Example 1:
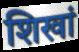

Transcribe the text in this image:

शिखां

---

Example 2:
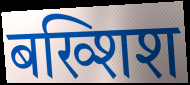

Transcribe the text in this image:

बख्शिश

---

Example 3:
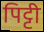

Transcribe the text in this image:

पिट्टी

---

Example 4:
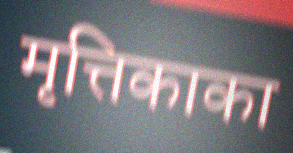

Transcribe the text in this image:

मृत्तिकाका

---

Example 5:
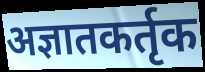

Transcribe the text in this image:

अज्ञातकर्तृक